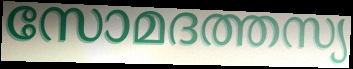
സോമദത്തസ്യ